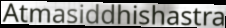
Atmasiddhishastra